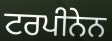
ਟਰਪੀਨੇਨ